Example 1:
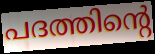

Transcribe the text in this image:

പദത്തിന്റെ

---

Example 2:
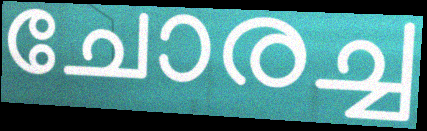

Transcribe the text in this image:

ചോരച്ച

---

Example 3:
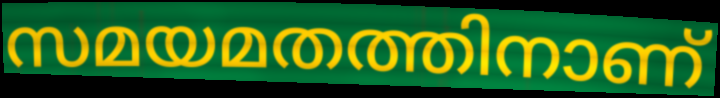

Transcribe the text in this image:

സമയമതത്തിനാണ്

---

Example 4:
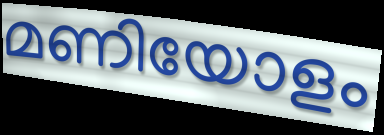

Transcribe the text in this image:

മണിയോളം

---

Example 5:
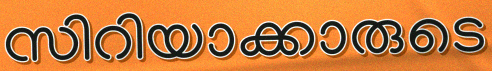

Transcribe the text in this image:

സിറിയാക്കാരുടെ